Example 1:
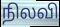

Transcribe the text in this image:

நிலவி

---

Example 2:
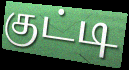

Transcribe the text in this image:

குட்டி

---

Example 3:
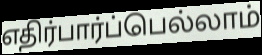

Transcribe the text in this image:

எதிர்பார்ப்பெல்லாம்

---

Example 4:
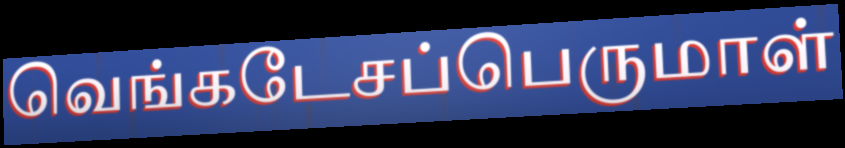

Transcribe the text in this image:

வெங்கடேசப்பெருமாள்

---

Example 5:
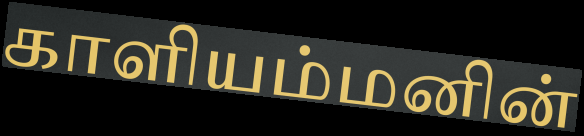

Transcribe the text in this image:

காளியம்மனின்